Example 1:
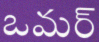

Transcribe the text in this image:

ఒమర్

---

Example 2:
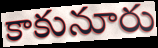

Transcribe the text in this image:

కాకునూరు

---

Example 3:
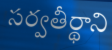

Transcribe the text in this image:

సర్వతీర్థాని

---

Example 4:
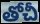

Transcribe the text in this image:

తోచీ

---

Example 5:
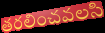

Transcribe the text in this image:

తరలించవలసి